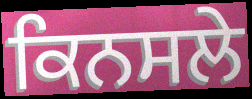
ਕਿਨਸਲੇ